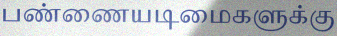
பண்ணையடிமைகளுக்கு